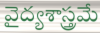
వైద్యశాస్త్రమే